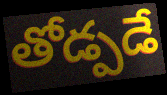
తోడ్పడే